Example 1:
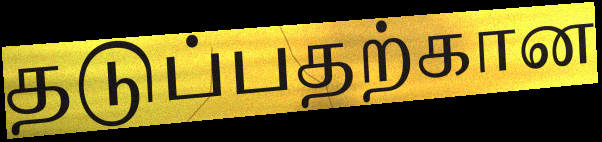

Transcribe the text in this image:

தடுப்பதற்கான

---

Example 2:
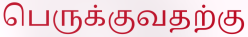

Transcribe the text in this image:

பெருக்குவதற்கு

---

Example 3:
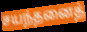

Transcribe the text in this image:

சயந்தனைத்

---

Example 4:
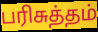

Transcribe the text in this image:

பரிசுத்தம்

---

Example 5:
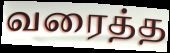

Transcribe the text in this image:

வரைத்த